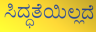
ಸಿದ್ಧತೆಯಿಲ್ಲದೆ